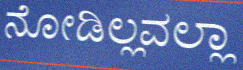
ನೋಡಿಲ್ಲವಲ್ಲಾ